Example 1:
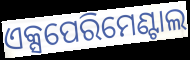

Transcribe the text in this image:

ଏକ୍ସପେରିମେଣ୍ଟାଲ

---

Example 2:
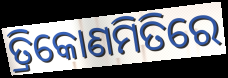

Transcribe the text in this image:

ତ୍ରିକୋଣମିତିରେ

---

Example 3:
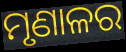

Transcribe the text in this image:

ମୃଣାଳର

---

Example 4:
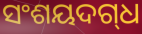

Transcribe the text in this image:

ସଂଶୟଦଗ୍‌ଧ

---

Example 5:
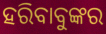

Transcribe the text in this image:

ହରିବାବୁଙ୍କର